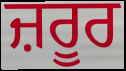
ਜ਼ਰੂਰ